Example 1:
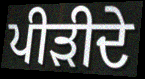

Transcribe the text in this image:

ਪੀੜੀਦੇ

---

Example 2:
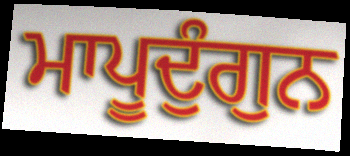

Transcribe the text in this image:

ਮਾਪੂਦੁੰਗੁਨ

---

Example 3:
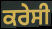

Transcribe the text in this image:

ਕਰੇਸੀ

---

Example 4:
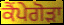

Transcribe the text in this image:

ਕੈਂਪੇਗੋੜਾ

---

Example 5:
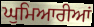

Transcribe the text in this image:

ਘੁਮਿਆਰੀਆਂ